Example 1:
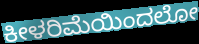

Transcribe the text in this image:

ಕೀಳರಿಮೆಯಿಂದಲೋ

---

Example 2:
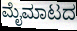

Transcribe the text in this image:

ಮೈಮಾಟದ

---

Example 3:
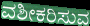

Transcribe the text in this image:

ವಶೀಕರಿಸುವ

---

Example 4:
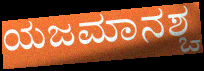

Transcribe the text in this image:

ಯಜಮಾನಶ್ಚ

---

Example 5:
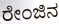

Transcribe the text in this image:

ರೇಂಜಿನ